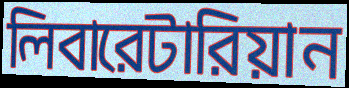
লিবারেটারিয়ান